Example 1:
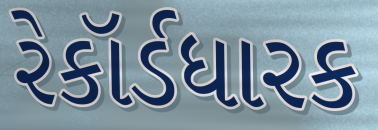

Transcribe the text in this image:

રેકૉર્ડધારક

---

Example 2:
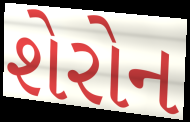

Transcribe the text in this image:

શેરોન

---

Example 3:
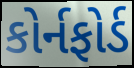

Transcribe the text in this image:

કોર્નફોર્ડ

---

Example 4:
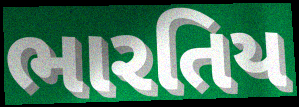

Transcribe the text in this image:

ભારતિય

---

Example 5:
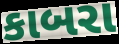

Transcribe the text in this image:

કાબરા